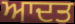
ਆਦਤ